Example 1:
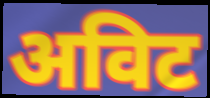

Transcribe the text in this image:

अविट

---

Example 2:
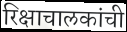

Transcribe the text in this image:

रिक्षाचालकांची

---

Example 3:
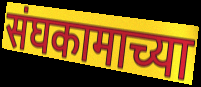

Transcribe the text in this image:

संघकामाच्या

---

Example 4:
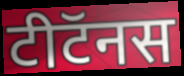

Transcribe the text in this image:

टीटॅनस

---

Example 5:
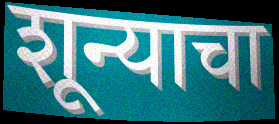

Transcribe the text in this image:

शून्याचा